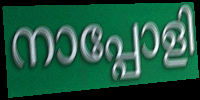
നാപ്പോളി